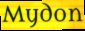
Mydon